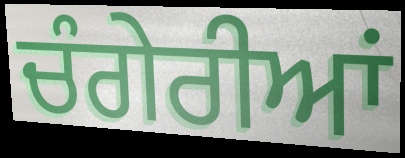
ਚੰਗੇਰੀਆਂ